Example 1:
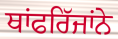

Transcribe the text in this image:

ਥਾਂਫਰਿੱਜਾਂਨੇ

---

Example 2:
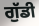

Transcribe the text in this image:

ਗੁੱਡੀ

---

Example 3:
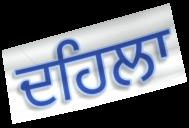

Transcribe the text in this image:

ਦਹਿਲਾ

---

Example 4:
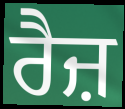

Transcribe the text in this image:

ਰੈਜ਼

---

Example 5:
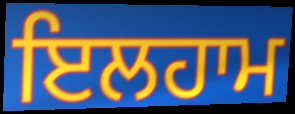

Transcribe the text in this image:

ਇਲਹਾਮ